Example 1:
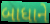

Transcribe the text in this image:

બાધાને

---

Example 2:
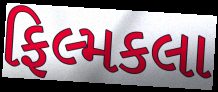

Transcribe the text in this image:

ફિલ્મકલા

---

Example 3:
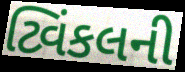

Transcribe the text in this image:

ટ્વિંકલની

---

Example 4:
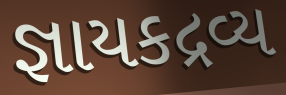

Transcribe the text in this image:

જ્ઞાયકદ્રવ્ય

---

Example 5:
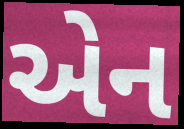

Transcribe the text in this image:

એન